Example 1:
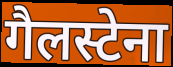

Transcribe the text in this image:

गैलस्टेना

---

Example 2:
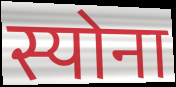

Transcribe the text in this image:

स्योना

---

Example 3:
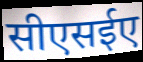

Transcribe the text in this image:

सीएसईए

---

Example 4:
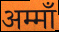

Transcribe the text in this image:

अम्माँ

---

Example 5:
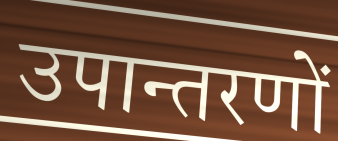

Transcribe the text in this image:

उपान्तरणों